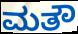
ಮತೌ